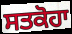
ਸਤਕੋਹਾ